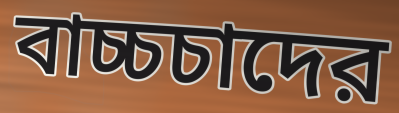
বাচ্চচাদের